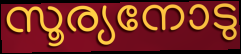
സൂര്യനോടു